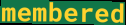
membered